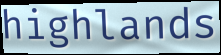
highlands